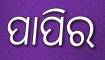
ପାପିର